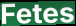
Fetes